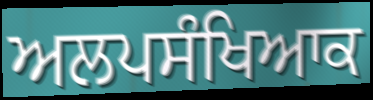
ਅਲਪਸੰਖਿਆਕ